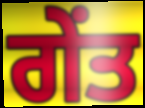
ਗੇਂਤ